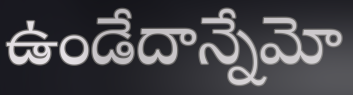
ఉండేదాన్నేమో